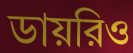
ডায়রিও